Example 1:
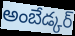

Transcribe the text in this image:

అంబేడ్కర్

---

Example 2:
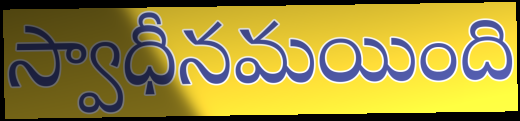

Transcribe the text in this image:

స్వాధీనమయింది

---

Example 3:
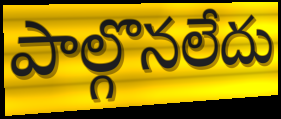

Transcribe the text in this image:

పాల్గొనలేదు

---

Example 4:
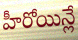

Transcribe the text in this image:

హీరోయిన్లే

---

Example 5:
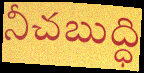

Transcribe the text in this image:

నీచబుద్ధి